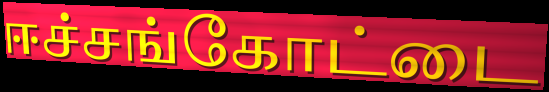
ஈச்சங்கோட்டை